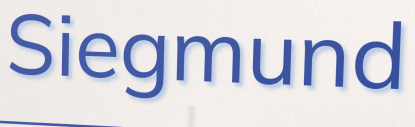
Siegmund